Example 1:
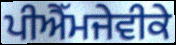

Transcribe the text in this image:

ਪੀਐੱਮਜੇਵੀਕੇ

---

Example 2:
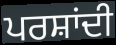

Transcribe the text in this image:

ਪਰਸ਼ਾਂਦੀ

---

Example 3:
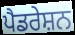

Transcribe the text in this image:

ਪੈਡਰੇਸ਼ਨ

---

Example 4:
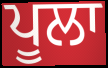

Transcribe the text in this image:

ਪੂਲਾ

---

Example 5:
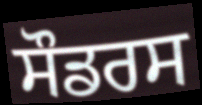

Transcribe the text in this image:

ਸੌਡਰਸ